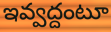
ఇవ్వద్దంటూ